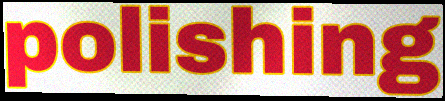
polishing